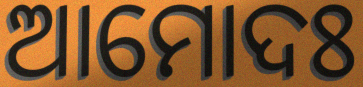
ଆମୋଦଃ